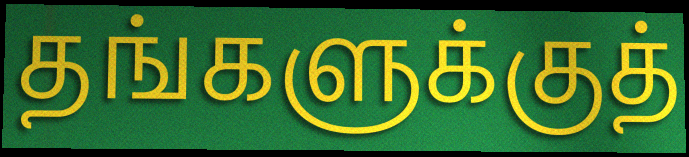
தங்களுக்குத்